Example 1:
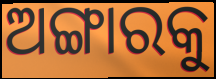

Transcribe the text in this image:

ଅଙ୍ଗାରକୁ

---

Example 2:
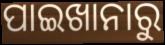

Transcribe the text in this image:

ପାଇଖାନାରୁ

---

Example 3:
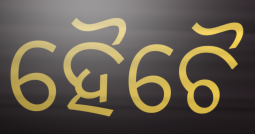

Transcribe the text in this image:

ହୈଚୈ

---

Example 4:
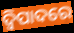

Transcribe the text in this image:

ଦ୍ୱିପାଦରେ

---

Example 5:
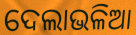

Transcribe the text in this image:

ଦେଲାଭଳିଆ